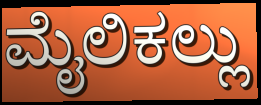
ಮೈಲಿಕಲ್ಲು